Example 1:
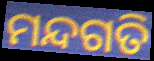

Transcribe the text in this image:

ମନ୍ଦଗତି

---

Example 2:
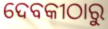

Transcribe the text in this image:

ଦେବକୀଠାରୁ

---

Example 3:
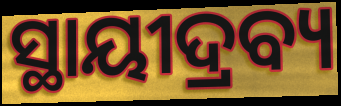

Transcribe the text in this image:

ସ୍ଥାୟୀଦ୍ରବ୍ୟ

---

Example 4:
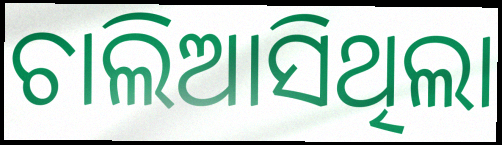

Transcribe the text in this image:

ଚାଲିଆସିଥିଲା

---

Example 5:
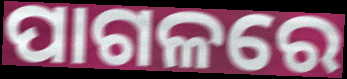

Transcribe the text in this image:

ପାଗଳରେ